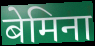
बेमिना